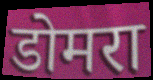
डोमरा